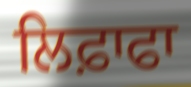
ਲਿਫ਼ਾਫਾ